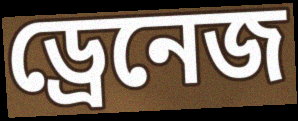
ড্রেনেজ